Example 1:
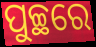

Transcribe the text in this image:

ପୁଚ୍ଛରେ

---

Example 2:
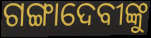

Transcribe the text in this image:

ଗଙ୍ଗାଦେବୀଙ୍କୁ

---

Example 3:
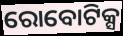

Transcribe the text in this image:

ରୋବୋଟିକ୍ସ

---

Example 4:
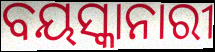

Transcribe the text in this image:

ବୟସ୍କାନାରୀ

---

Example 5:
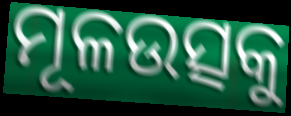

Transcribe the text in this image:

ମୂଳଉତ୍ସକୁ